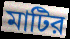
মাটির